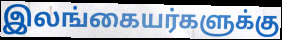
இலங்கையர்களுக்கு